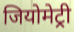
जियोमेट्री